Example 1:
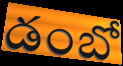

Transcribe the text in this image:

డంబో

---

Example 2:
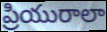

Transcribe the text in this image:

ప్రియురాలా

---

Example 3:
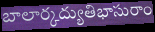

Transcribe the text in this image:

బాలార్కద్యుతిభాసురాం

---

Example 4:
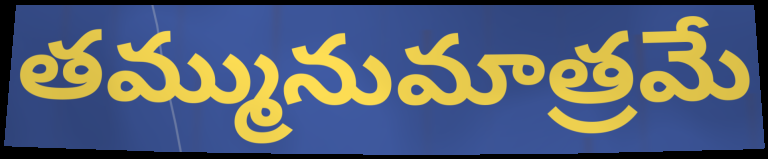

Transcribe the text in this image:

తమ్మునుమాత్రమే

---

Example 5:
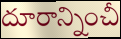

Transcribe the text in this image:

దూరాన్నించీ